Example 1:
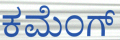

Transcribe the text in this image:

ಕಮೆಂಗ್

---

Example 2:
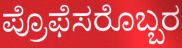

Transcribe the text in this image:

ಪ್ರೊಫೆಸರೊಬ್ಬರ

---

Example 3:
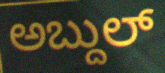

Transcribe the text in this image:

ಅಬ್ದುಲ್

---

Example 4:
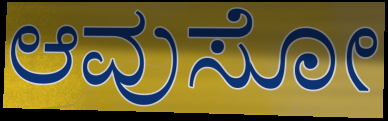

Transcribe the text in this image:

ಆವುಸೋ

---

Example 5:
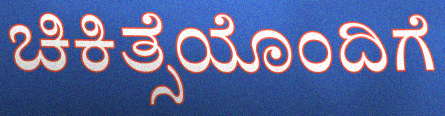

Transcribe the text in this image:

ಚಿಕಿತ್ಸೆಯೊಂದಿಗೆ